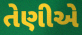
તેણીએ